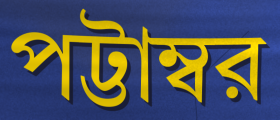
পট্টাম্বর